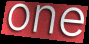
one